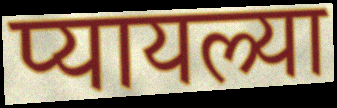
प्यायल्या